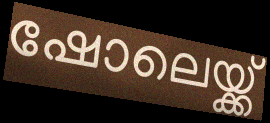
ഷോലെയ്ക്ക്